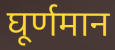
घूर्णमान